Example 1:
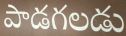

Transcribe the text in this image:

పాడగలడు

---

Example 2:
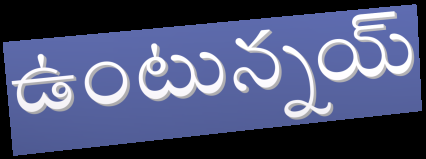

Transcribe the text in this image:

ఉంటున్నయ్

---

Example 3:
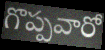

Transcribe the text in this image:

గొప్పవారో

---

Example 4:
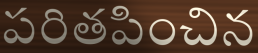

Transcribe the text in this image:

పరితపించిన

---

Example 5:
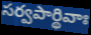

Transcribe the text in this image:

సర్వపార్థివాః